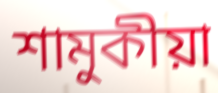
শামুকীয়া